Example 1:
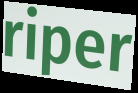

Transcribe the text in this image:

riper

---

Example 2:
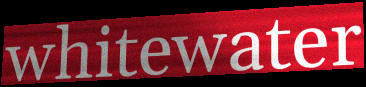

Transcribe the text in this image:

whitewater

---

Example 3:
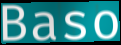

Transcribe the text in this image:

Baso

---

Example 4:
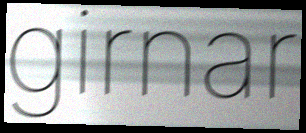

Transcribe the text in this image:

girnar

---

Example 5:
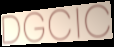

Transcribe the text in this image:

DGCIC